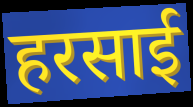
हरसाई